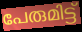
പേരുമിട്ട്